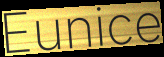
Eunice